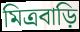
মিত্রবাড়ি